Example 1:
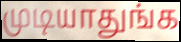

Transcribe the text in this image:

முடியாதுங்க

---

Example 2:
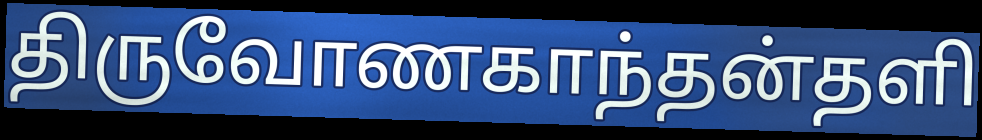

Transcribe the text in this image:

திருவோணகாந்தன்தளி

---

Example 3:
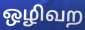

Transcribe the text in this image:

ஒழிவற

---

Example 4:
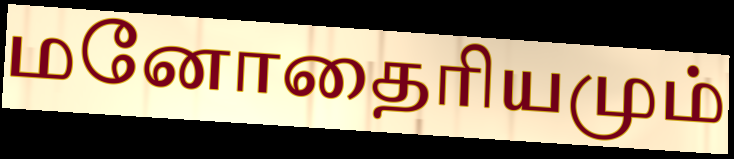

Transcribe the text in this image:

மனோதைரியமும்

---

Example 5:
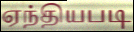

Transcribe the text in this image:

ஏந்தியபடி